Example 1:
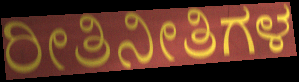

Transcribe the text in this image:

ರೀತಿನೀತಿಗಳ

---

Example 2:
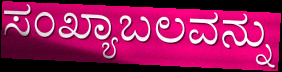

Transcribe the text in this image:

ಸಂಖ್ಯಾಬಲವನ್ನು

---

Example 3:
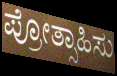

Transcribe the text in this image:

ಪ್ರೋತ್ಸಾಹಿಸು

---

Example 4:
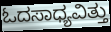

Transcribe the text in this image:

ಓದಸಾಧ್ಯವಿತ್ತು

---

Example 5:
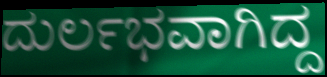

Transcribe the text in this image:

ದುರ್ಲಭವಾಗಿದ್ದ